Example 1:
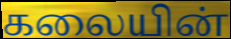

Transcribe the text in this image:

கலையின்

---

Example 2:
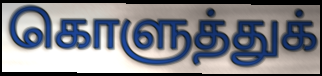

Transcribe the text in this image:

கொளுத்துக்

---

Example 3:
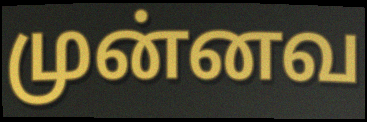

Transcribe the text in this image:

முன்னவ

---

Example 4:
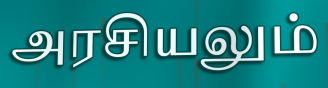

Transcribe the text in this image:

அரசியலும்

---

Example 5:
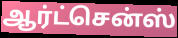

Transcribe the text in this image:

ஆர்ட்சென்ஸ்